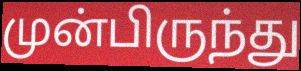
முன்பிருந்து